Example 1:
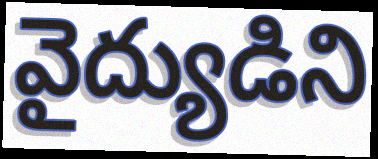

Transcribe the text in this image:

వైద్యుడిని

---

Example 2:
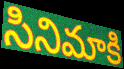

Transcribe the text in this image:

సినిమాకి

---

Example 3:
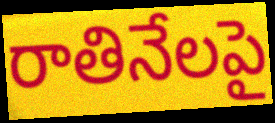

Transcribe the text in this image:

రాతినేలపై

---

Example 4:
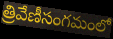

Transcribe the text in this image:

త్రివేణీసంగమంలో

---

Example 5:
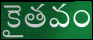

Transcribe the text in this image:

కైతవం